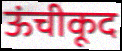
ऊंचीकूद